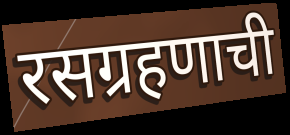
रसग्रहणाची